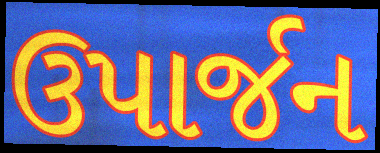
ઉપાર્જન